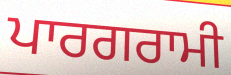
ਪਾਰਗਰਾਮੀ